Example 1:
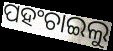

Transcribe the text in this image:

ପହଂଚାଇଲୁ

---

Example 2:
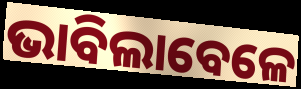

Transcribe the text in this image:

ଭାବିଲାବେଳେ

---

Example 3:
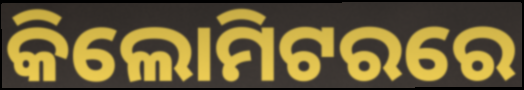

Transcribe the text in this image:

କିଲୋମିଟରରେ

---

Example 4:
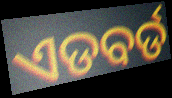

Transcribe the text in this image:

ଏଡବର୍ଡ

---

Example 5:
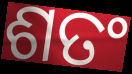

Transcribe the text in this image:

ଶତଂ